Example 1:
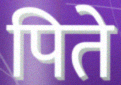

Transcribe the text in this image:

पिते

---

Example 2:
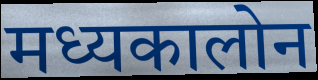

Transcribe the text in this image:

मध्यकालोन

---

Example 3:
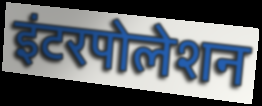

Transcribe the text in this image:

इंटरपोलेशन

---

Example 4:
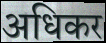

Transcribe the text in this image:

अधिकर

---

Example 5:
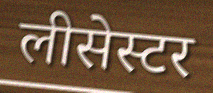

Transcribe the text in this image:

लीसेस्टर